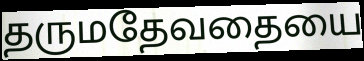
தருமதேவதையை